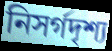
নিসর্গদৃশ্য